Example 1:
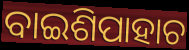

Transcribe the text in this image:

ବାଇଶିପାହାଚ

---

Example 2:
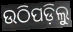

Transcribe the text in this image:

ଉଠିପଡ଼ିଲୁ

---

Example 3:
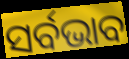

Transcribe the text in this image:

ସର୍ବଭାବ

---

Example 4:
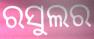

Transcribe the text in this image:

ରସୁଲର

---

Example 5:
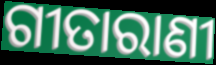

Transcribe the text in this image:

ଗୀତାରାଣୀ